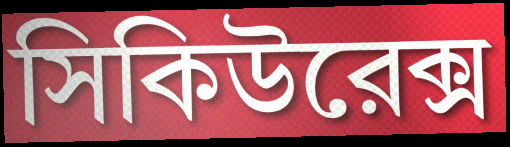
সিকিউরেক্স